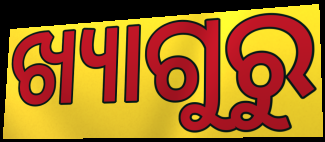
ଖ୍ୟାଗୁରୁ